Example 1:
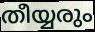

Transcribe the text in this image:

തീയ്യരും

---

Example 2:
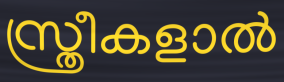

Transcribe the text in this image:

സ്ത്രീകളാൽ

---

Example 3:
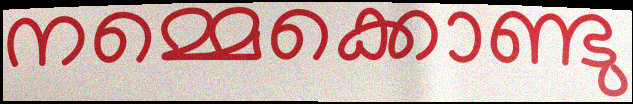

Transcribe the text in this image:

നമ്മെക്കൊണ്ടു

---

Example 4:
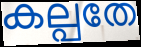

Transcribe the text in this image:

കല്പതേ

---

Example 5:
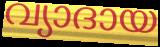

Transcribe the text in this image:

വ്യാദായ